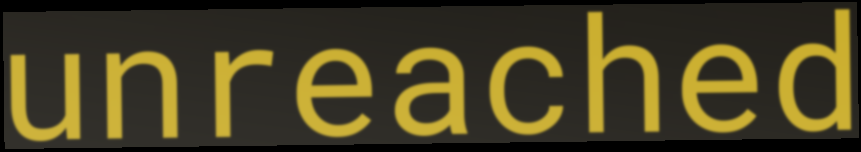
unreached